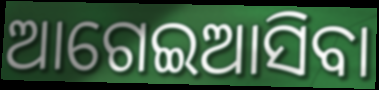
ଆଗେଇଆସିବା